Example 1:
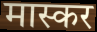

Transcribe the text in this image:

मास्कर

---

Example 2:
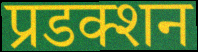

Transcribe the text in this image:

प्रडक्शन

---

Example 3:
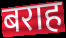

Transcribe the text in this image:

बराह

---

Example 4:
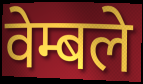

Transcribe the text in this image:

वेम्बले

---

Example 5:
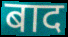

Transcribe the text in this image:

बाद